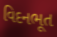
વિદનભૂત